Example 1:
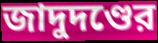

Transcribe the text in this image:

জাদুদণ্ডের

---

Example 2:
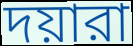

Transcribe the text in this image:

দয়ারা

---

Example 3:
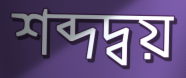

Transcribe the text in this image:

শব্দদ্বয়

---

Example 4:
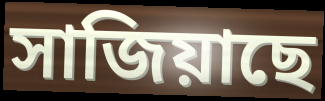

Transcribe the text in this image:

সাজিয়াছে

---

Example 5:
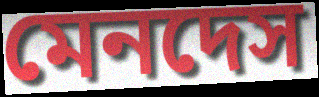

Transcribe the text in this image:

মেনদেস